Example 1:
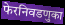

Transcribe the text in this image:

फेरनिवडणुका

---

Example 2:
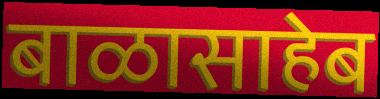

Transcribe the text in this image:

बाळासाहेब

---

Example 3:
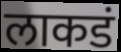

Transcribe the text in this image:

लाकडं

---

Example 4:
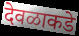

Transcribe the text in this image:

देवळाकडे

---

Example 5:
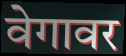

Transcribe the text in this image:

वेगावर